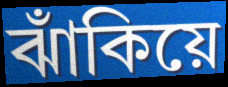
ঝাঁকিয়ে